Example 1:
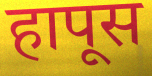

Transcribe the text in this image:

हापूस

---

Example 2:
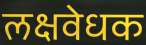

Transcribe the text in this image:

लक्षवेधक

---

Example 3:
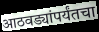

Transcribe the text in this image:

आठवड्यांपर्यंतचा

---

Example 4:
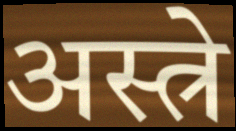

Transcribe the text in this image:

अस्त्रे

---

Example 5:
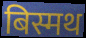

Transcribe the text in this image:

बिस्मथ